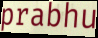
prabhu